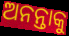
ଅନନ୍ତାକୁ